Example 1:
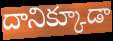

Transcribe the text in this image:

దానిక్కూడా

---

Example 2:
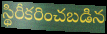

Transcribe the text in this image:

స్థిరీకరించబడిన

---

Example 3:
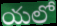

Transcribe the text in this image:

యలో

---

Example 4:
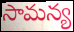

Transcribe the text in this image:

సామన్య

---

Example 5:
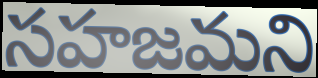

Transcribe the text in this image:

సహజమని